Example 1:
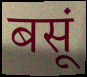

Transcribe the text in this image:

बसूं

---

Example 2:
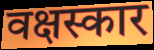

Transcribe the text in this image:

वक्षस्कार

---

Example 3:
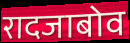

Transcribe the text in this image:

रादजाबोव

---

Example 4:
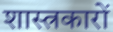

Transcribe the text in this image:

शास्त्रकारों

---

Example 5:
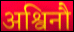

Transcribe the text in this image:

अश्विनौ